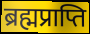
ब्रह्मप्राप्ति